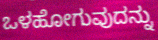
ಒಳಹೋಗುವುದನ್ನು